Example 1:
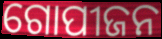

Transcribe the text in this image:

ଗୋପୀଜନ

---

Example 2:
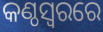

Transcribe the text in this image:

କଣ୍ଠସ୍ୱରରେ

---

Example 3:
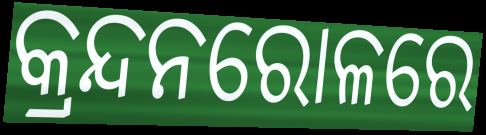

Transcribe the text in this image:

କ୍ରନ୍ଦନରୋଳରେ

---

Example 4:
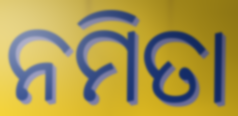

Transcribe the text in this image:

ନମିତା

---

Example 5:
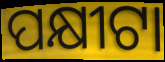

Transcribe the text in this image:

ପକ୍ଷୀଟା